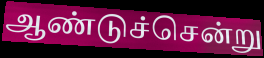
ஆண்டுச்சென்று